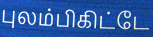
புலம்பிகிட்டே